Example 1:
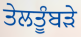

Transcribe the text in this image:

ਤੇਲਤੂੰਬੜੇ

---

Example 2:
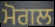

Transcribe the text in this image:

ਮੋਗਲ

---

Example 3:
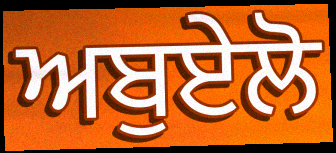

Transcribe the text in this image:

ਅਬੁਏਲੋ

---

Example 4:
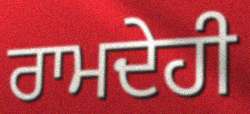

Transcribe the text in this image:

ਰਾਮਦੇਹੀ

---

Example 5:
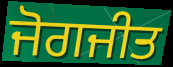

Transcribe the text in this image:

ਜੋਗਜੀਤ